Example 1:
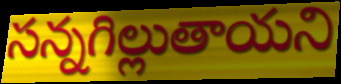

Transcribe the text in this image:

సన్నగిల్లుతాయని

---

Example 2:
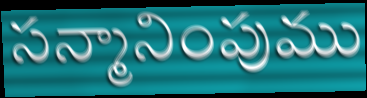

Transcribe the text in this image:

సన్మానింపుము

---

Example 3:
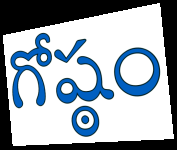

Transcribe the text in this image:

గోష్ఠం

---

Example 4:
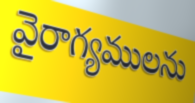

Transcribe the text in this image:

వైరాగ్యములను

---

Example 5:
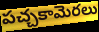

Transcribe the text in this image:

పచ్చకామెరలు